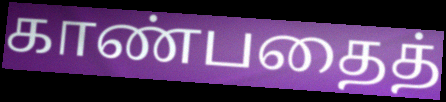
காண்பதைத்